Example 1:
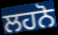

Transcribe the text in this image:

ਲਹਨੋ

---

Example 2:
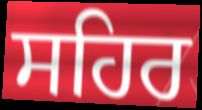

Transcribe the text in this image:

ਸਹਿਰ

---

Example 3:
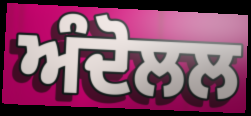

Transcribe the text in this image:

ਅੰਦੋਲਲ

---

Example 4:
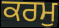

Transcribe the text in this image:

ਕਰਮੁ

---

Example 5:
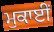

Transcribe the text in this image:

ਮੁਕਾਈਂ